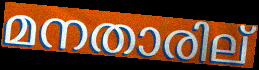
മനതാരില്